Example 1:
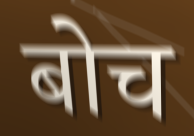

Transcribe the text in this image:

बोच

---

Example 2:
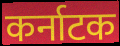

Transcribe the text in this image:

कर्नाटक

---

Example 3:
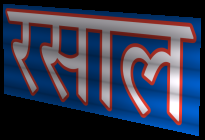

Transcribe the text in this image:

रसाल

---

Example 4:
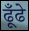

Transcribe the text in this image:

ढूँढे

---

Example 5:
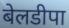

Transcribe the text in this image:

बेलडीपा